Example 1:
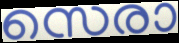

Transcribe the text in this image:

സെരാ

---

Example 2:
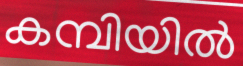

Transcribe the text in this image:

കമ്പിയിൽ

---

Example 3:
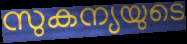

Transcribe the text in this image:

സുകന്യയുടെ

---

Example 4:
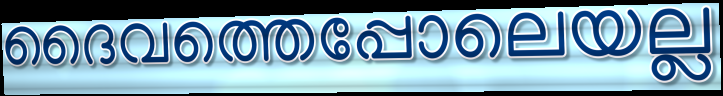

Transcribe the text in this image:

ദൈവത്തെപ്പോലെയല്ല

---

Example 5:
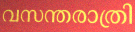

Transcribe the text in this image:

വസന്തരാത്രി